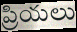
ప్రియలు